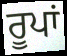
ਰੂਪਾਂ